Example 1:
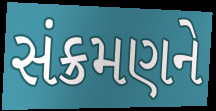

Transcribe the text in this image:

સંક્રમણને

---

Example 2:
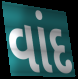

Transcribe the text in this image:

વાંદ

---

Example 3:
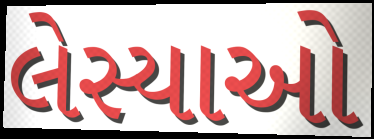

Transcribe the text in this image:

લેસ્યાઓ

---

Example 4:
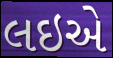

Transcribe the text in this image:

લઇએ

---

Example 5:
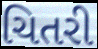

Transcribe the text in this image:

ચિતરી